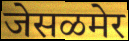
जेसळमेर